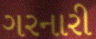
ગરનારી